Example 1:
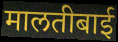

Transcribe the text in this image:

मालतीबाई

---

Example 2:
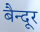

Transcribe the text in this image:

बैन्दूर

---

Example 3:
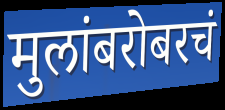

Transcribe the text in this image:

मुलांबरोबरचं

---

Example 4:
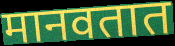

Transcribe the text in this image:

मानवतात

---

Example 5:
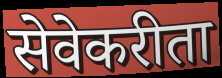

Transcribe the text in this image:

सेवेकरीता